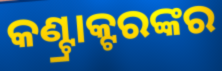
କଣ୍ଟ୍ରାକ୍ଟରଙ୍କର